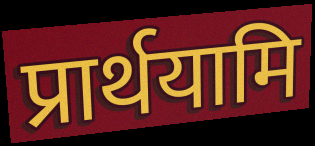
प्रार्थयामि